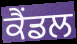
ਕੈਂਡਲ